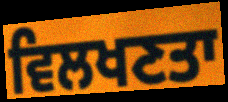
ਵਿਲਖਣਤਾ